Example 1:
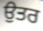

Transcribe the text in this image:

ਉਤਰ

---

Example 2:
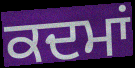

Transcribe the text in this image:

ਕਦਮਾਂ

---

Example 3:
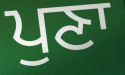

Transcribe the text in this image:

ਪੁਣਾ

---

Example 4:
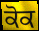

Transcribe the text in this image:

ਕੋਕ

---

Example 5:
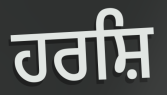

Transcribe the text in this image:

ਹਰਸ਼ਿ